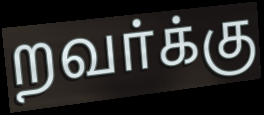
றவர்க்கு